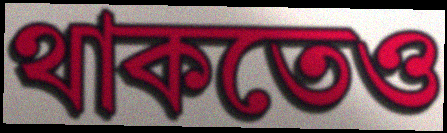
থাকতেও